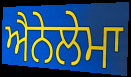
ਐਨੇਲੇਮਾ